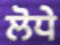
ਲੋਧੇ